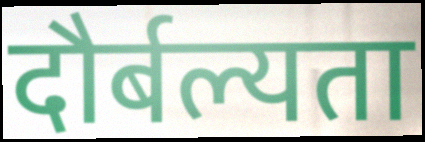
दौर्बल्यता